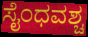
ಸೈಂಧವಶ್ಚ